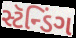
સ્ટૅન્ડિંગ